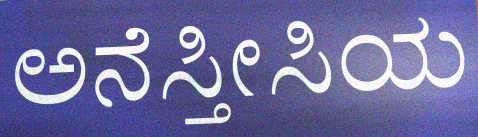
ಅನೆಸ್ತೀಸಿಯ